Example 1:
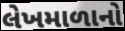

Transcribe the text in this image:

લેખમાળાનો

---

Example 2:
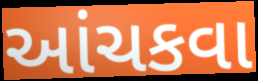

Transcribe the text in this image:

આંચકવા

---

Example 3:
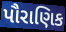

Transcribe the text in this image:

પૌરાણિક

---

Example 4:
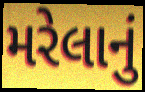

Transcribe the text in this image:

મરેલાનું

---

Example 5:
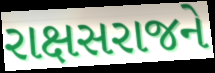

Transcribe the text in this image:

રાક્ષસરાજને